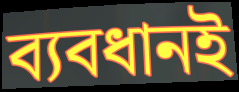
ব্যবধানই